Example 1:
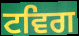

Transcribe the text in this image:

ਟਵਿਗ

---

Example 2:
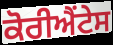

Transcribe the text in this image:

ਕੋਰੀਐਂਟੇਸ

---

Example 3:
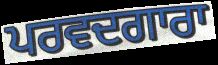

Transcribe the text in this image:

ਪਰਵਦਗਾਰਾ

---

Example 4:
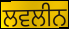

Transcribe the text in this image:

ਲਵਲੀਨ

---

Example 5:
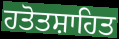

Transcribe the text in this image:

ਹਤੋਤਸ਼ਾਹਿਤ